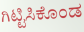
ಗಿಟ್ಟಿಸಿಕೊಂಡ